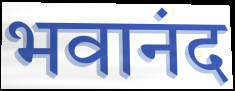
भवानंद